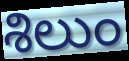
శిలుం